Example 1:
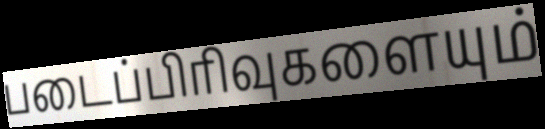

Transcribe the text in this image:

படைப்பிரிவுகளையும்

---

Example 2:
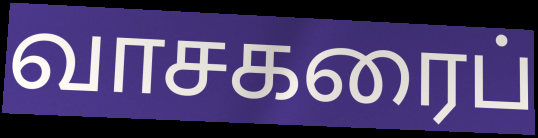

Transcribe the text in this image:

வாசகரைப்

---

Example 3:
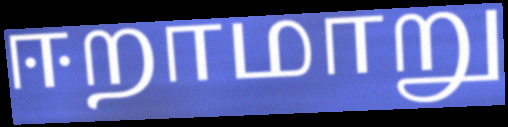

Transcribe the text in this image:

ஈறாமாறு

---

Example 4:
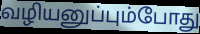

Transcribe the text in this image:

வழியனுப்பும்போது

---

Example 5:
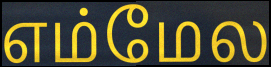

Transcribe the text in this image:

எம்மேல